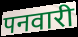
पनवारी